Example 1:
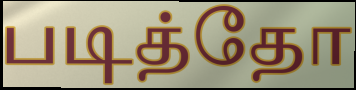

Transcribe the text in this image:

படித்தோ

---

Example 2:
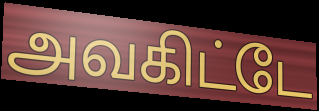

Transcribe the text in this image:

அவகிட்டே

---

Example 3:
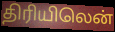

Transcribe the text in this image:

திரியிலென்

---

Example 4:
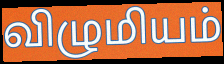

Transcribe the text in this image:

விழுமியம்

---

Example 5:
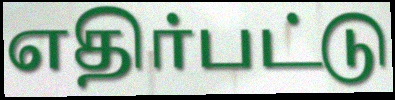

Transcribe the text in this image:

எதிர்பட்டு